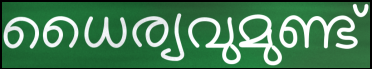
ധൈര്യവുമുണ്ട്